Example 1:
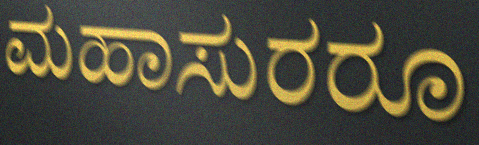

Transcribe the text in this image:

ಮಹಾಸುರರೂ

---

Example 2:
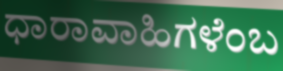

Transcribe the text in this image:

ಧಾರಾವಾಹಿಗಳೆಂಬ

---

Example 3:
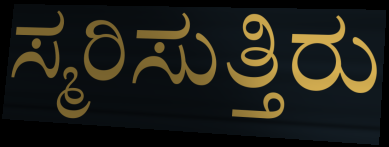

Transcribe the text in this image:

ಸ್ಮರಿಸುತ್ತಿರು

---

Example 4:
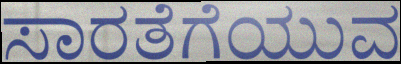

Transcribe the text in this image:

ಸಾರತೆಗೆಯುವ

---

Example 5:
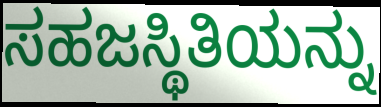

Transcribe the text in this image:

ಸಹಜಸ್ಥಿತಿಯನ್ನು